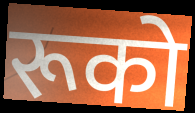
रूको